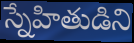
స్నేహితుడిని